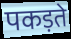
पकड़ते